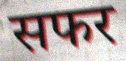
सफर